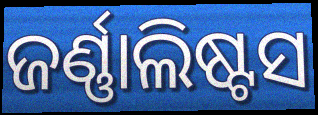
ଜର୍ଣ୍ଣାଲିଷ୍ଟସ